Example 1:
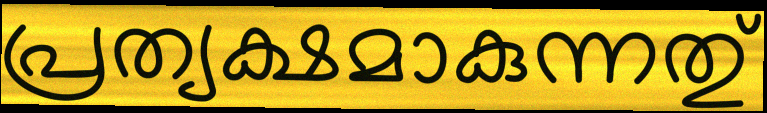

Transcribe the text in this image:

പ്രത്യക്ഷമാകുന്നതു്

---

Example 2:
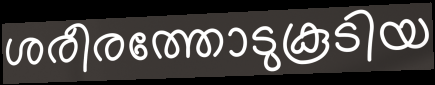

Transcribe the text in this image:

ശരീരത്തോടുകൂടിയ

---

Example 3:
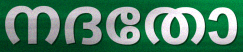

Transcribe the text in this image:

നദതോ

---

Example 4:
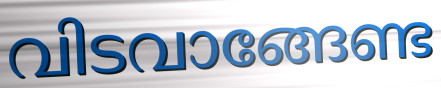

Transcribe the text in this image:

വിടവാങ്ങേണ്ട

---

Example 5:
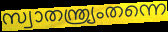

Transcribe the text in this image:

സ്വാതന്ത്ര്യംതന്നെ